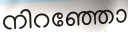
നിറഞ്ഞോ